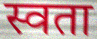
स्वता